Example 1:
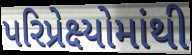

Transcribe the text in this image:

પરિપ્રેક્ષ્યોમાંથી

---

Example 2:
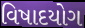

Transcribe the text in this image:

વિષાદયોગ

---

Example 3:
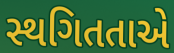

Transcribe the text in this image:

સ્થગિતતાએ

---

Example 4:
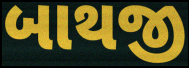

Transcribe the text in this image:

બાથજી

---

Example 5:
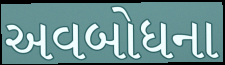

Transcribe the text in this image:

અવબોધના